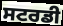
ਸਟਰਡੀ